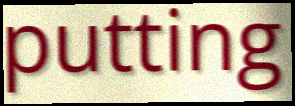
putting